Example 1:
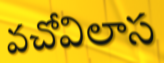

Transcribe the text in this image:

వచోవిలాస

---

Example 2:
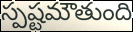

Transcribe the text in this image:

స్పష్టమౌతుంది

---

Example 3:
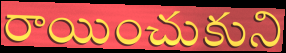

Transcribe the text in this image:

రాయించుకుని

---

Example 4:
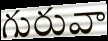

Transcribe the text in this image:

గురువా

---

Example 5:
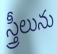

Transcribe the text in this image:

స్త్రీలును